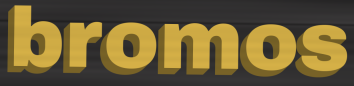
bromos